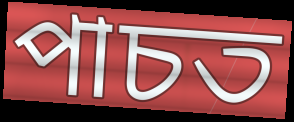
পাচত